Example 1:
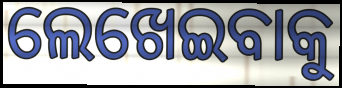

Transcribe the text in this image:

ଲେଖେଇବାକୁ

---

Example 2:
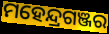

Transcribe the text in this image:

ମହେନ୍ଦ୍ରଗଞ୍ଜର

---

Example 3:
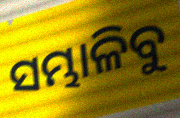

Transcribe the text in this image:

ସମ୍ଭାଳିବୁ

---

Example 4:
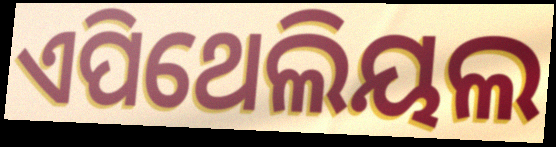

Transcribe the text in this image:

ଏପିଥେଲିୟଲ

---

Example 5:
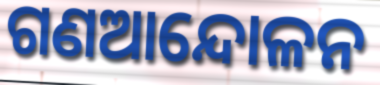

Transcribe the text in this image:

ଗଣଆନ୍ଦୋଳନ